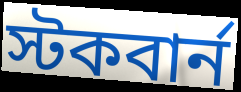
স্টকবার্ন